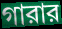
গারার